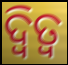
ଦ୍ୱିତ୍ୱ